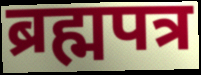
ब्रह्मपत्र